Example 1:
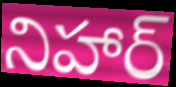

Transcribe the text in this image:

నిహార్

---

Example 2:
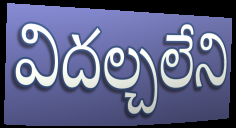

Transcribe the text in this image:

విదల్చలేని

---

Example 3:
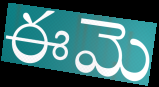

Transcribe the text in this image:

ఈమె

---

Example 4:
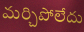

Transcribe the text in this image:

మర్చిపోలేదు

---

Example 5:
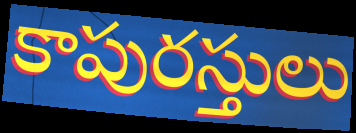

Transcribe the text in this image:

కాపురస్తులు